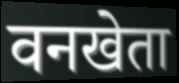
वनखेता